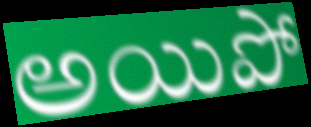
అయిపో